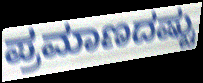
ಪ್ರಮಾಣದಷ್ಟು